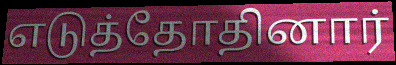
எடுத்தோதினார்